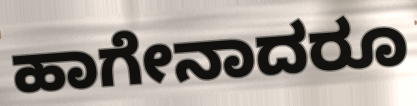
ಹಾಗೇನಾದರೂ